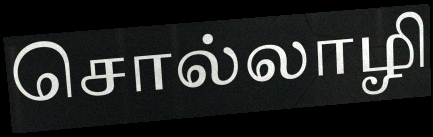
சொல்லாழி